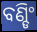
ବଣ୍ଡିଂ